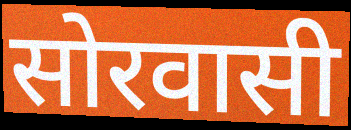
सोरवासी